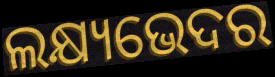
ଲକ୍ଷ୍ୟଭେଦର